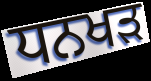
ਧਨਖਡ਼